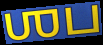
ஶப